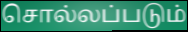
சொல்லப்படும்